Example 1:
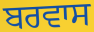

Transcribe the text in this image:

ਬਰਵਾਸ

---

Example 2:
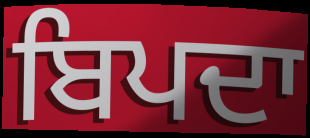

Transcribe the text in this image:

ਬਿਪਦਾ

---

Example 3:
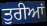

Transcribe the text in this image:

ਤੁਰੀਆਂ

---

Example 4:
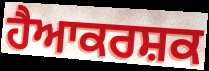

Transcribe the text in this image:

ਹੈਆਕਰਸ਼ਕ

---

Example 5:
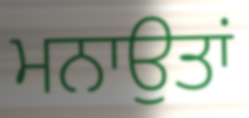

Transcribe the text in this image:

ਮਨਾਉਤਾਂ